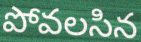
పోవలసిన